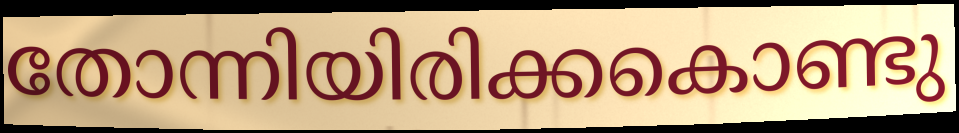
തോന്നിയിരിക്കകൊണ്ടു